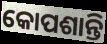
କୋପଶାନ୍ତି